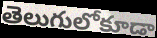
తెలుగులోకూడా